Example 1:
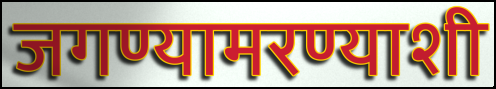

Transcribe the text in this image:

जगण्यामरण्याशी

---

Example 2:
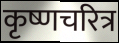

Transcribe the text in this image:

कृष्णचरित्र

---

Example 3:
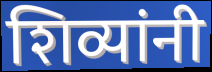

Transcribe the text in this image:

शिव्यांनी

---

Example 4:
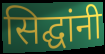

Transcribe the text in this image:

सिद्घांनी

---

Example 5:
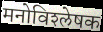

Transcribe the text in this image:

मनोविश्लेषक